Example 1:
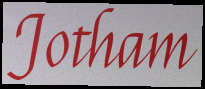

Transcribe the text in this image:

Jotham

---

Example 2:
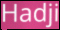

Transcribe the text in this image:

Hadji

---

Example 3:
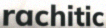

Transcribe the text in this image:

rachitic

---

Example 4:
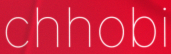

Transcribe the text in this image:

chhobi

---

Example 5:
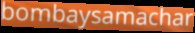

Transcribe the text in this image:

bombaysamachar